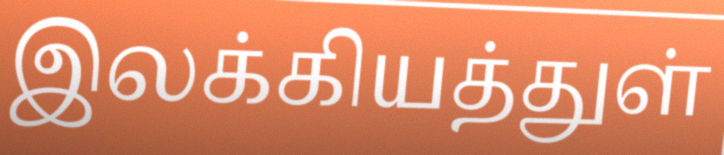
இலக்கியத்துள்